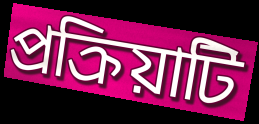
প্রক্রিয়াটি